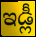
ఇడ్లీ